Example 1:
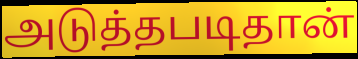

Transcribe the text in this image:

அடுத்தபடிதான்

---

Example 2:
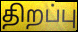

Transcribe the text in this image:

திறப்பு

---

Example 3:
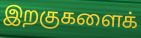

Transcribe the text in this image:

இறகுகளைக்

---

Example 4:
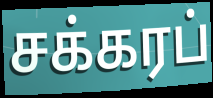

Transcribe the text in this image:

சக்கரப்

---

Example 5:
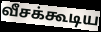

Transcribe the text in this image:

வீசக்கூடிய